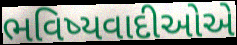
ભવિષ્યવાદીઓએ